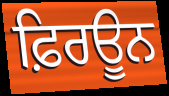
ਫ਼ਿਰਊਨ